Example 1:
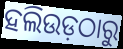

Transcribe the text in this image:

ହଲିଉଡ଼ଠାରୁ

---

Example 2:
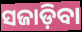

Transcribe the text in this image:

ସଜାଡ଼ିବା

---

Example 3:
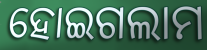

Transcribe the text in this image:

ହୋଇଗଲାମ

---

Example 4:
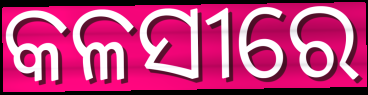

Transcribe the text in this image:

କଳସୀରେ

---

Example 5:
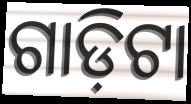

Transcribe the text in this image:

ଗାଡ଼ିଟା